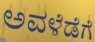
ಅವಳೆಡೆಗೆ